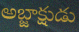
అబ్జాక్షుడు